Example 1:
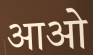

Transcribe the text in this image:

आओ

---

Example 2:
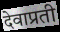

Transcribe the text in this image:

देवाप्रती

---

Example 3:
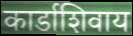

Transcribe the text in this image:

कार्डाशिवाय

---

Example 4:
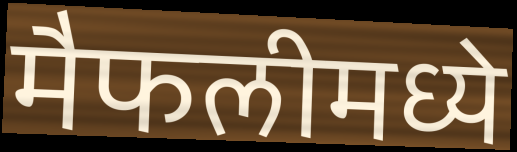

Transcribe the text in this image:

मैफलीमध्ये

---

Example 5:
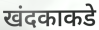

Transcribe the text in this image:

खंदकाकडे